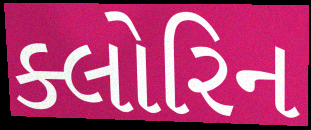
ક્લોરિન